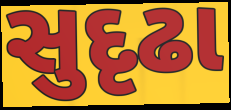
સુદૃઢા